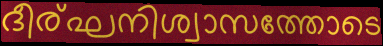
ദീര്ഘനിശ്വാസത്തോടെ